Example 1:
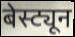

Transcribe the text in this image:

बेस्ट्यून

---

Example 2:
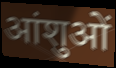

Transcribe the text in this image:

आंशुओं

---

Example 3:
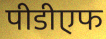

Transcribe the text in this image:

पीडीएफ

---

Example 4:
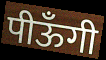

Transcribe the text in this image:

पीऊँगी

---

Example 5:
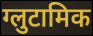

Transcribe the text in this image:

ग्लुटामिक